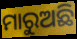
ମାରୁଅଛି